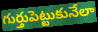
గుర్తుపెట్టుకునేలా